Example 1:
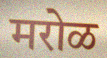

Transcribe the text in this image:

मरोळ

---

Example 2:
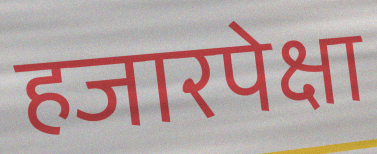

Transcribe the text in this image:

हजारपेक्षा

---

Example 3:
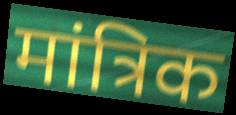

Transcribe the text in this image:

मांत्रिक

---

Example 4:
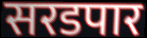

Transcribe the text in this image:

सरडपार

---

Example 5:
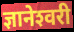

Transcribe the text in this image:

ज्ञानेश्‍वरी